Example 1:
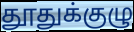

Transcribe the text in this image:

தூதுக்குழு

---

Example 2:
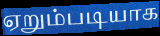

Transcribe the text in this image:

ஏறும்படியாக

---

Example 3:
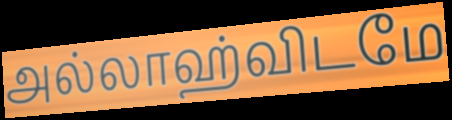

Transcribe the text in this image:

அல்லாஹ்விடமே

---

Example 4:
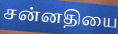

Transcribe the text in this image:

சன்னதியை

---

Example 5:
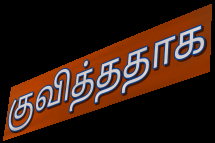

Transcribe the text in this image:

குவித்ததாக